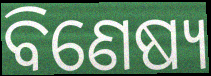
ବିଣେଷ୍ୟ